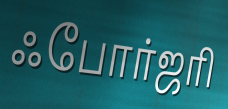
ஃபோர்ஜரி